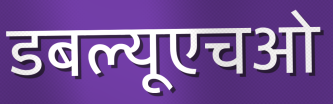
डबल्यूएचओ